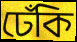
ঢেঁকি